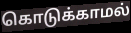
கொடுக்காமல்